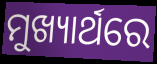
ମୁଖ୍ୟାର୍ଥରେ